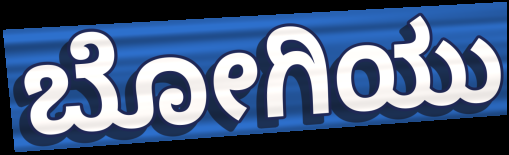
ಬೋಗಿಯು